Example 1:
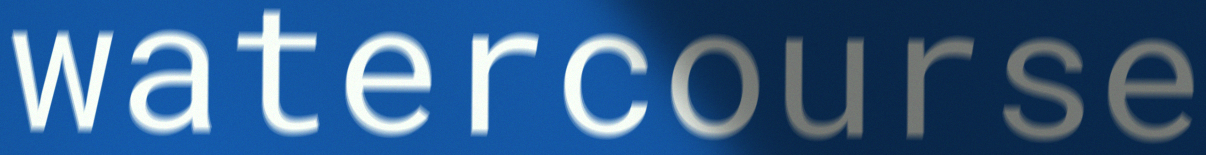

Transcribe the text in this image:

watercourse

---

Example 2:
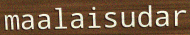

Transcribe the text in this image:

maalaisudar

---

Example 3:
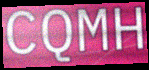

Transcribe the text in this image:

CQMH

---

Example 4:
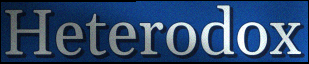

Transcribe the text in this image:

Heterodox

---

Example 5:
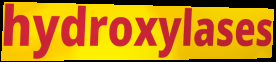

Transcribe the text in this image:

hydroxylases